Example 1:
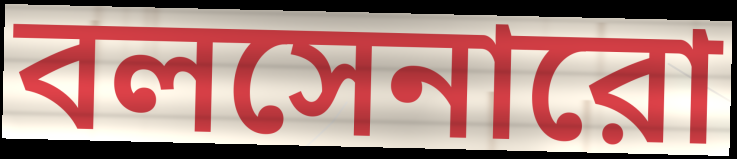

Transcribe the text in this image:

বলসেনারো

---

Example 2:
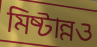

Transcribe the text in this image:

মিষ্টান্নও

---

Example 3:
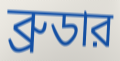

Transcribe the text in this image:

ব্রুডার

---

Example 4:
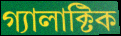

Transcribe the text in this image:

গ্যালাক্টিক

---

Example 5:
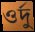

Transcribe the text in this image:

ওর্দু